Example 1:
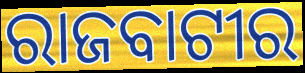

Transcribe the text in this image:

ରାଜବାଟୀର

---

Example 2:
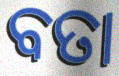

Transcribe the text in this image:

ବତା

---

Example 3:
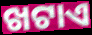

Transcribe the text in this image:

ଖଟାଏ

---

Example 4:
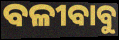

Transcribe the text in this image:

ବଳୀବାବୁ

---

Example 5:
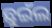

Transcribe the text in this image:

ଛୁଇଁଲ